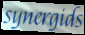
synergids